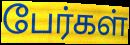
பேர்கள்